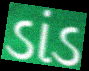
ડાંડ